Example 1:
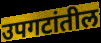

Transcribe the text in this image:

उपगटांतील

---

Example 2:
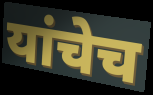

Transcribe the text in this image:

यांचेच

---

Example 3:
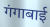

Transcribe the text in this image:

गंगाबाई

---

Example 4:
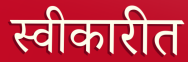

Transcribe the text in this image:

स्वीकारीत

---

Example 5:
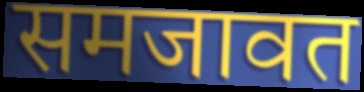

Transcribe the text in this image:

समजावत